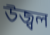
উজ্বল